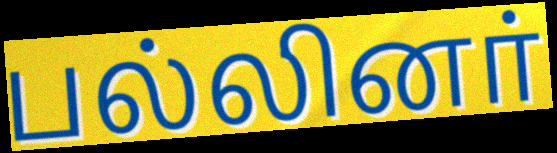
பல்லினர்